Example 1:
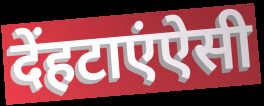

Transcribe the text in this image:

देंहटाएंऐसी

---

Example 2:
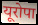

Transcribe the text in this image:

यूरोपा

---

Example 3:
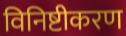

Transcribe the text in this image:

विनिष्टीकरण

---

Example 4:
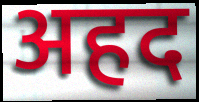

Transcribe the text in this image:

अहद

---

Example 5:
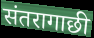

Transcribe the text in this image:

संतरागाछी